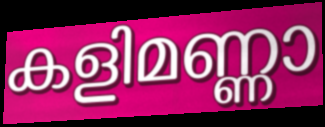
കളിമണ്ണാ